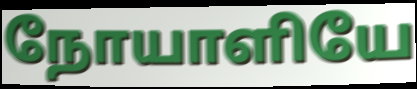
நோயாளியே